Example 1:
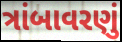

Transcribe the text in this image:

ત્રાંબાવરણું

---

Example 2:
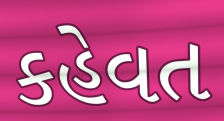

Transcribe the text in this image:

કહેવત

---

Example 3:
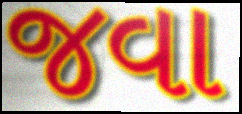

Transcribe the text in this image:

જવા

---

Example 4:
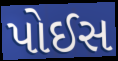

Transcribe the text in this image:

પોઈસ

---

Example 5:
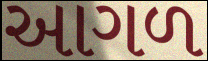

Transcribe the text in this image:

આગળ